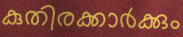
കുതിരക്കാർക്കും